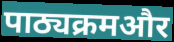
पाठ्यक्रमऔर